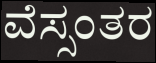
ವೆಸ್ಸಂತರ